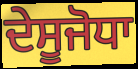
ਦੇਸੂਜੋਧਾ